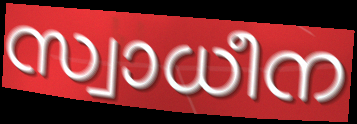
സ്വാധീന